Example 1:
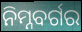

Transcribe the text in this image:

ନିମ୍ନବର୍ଗର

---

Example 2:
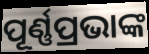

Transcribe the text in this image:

ପୂର୍ଣ୍ଣପ୍ରଭାଙ୍କ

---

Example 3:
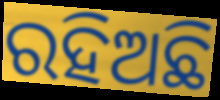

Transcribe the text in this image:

ରହିଅଛି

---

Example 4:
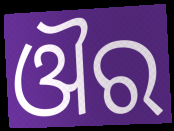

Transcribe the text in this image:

ଔର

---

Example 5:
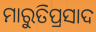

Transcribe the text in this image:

ମାରୁତିପ୍ରସାଦ